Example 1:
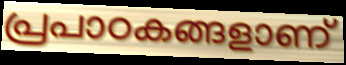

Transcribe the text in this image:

പ്രപാഠകങ്ങളാണ്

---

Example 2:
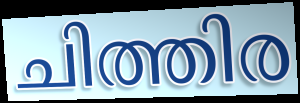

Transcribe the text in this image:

ചിത്തിര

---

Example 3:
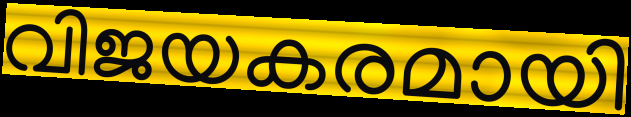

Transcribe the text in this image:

വിജയകരമായി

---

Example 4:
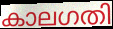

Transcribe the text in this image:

കാലഗതി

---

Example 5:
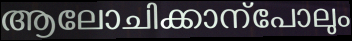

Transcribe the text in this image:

ആലോചിക്കാന്പോലും